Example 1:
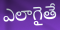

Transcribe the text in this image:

ఎలాగైతే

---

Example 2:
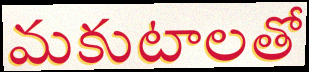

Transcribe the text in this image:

మకుటాలతో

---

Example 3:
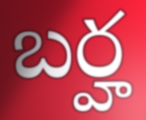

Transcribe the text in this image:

బర్హ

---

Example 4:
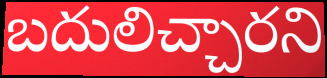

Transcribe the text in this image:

బదులిచ్చారని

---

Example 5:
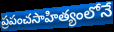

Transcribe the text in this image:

ప్రపంచసాహిత్యంలోనే